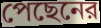
পেছেনের